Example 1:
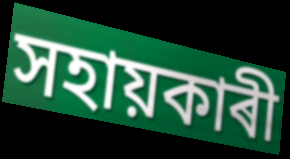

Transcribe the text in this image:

সহায়কাৰী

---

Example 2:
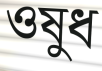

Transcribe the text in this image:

ওষুধ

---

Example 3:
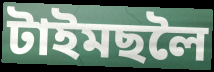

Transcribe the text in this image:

টাইমছলৈ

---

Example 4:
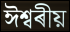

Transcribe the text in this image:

ঈশ্বৰীয়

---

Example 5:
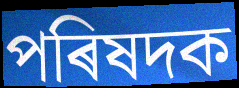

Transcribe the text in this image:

পৰিষদক